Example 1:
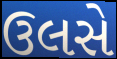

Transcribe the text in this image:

ઉલસે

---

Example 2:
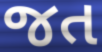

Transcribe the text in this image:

જત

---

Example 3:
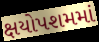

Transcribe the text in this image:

ક્ષયોપશમમાં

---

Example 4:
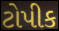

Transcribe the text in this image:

ટોપીક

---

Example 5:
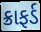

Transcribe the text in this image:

ક્રાફર્ડ